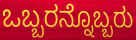
ಒಬ್ಬರನ್ನೊಬ್ಬರು